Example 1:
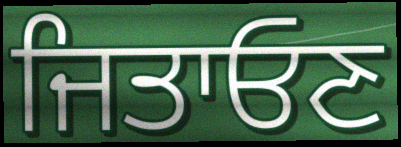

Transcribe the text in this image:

ਜਿਤਾਓਣ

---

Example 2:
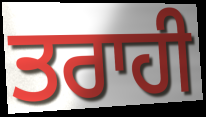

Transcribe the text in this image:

ਤਰਾਹੀ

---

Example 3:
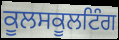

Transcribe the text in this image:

ਕੂਲਸਕੂਲਟਿੰਗ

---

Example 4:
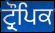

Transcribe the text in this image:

ਟ੍ਰੌਪਿਕ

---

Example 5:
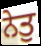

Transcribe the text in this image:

ਨੇਤੁ